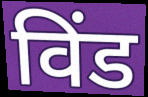
विंड